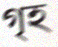
গৃহ